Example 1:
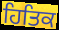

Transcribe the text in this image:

ਹਿਤਿਕ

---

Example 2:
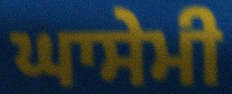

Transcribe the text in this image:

ਘਾਸੇਮੀ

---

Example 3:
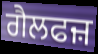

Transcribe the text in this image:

ਗੈਲਫਜ਼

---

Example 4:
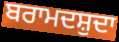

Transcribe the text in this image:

ਬਰਾਮਦਸ਼ੁਦਾ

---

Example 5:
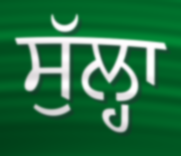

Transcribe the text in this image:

ਸੁੱਲ੍ਹਾ